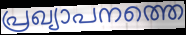
പ്രഖ്യാപനത്തെ